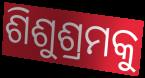
ଶିଶୁଶ୍ରମକୁ